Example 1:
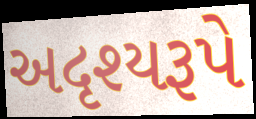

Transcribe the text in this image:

અદૃશ્યરૂપે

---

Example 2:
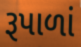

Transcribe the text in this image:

રૂપાળાં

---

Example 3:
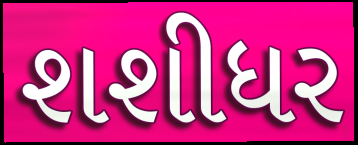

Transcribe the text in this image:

શશીધર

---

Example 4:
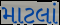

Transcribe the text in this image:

માટલાં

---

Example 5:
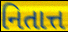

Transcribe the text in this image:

નિતાત્ત